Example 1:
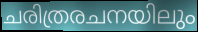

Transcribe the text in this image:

ചരിത്രരചനയിലും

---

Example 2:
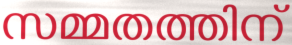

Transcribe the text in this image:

സമ്മതത്തിന്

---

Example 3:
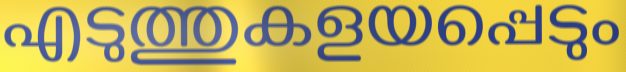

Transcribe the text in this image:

എടുത്തുകളയപ്പെടും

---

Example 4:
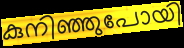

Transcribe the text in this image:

കുനിഞ്ഞുപോയി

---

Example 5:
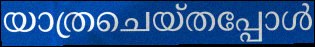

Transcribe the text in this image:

യാത്രചെയ്തപ്പോൾ